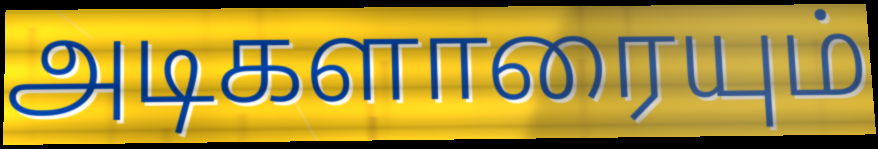
அடிகளாரையும்